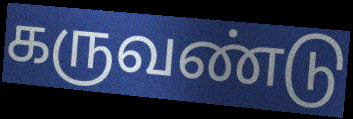
கருவண்டு